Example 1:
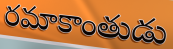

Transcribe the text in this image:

రమాకాంతుడు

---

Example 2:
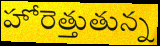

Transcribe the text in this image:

హోరెత్తుతున్న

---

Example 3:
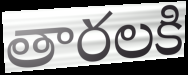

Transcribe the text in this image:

తారలకి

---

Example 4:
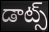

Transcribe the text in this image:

డాట్స్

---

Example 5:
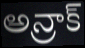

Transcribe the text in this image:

అన్రాక్